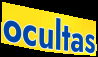
ocultas